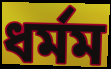
ধর্মম